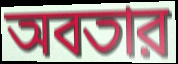
অবতার